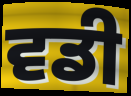
ਵਡੀ